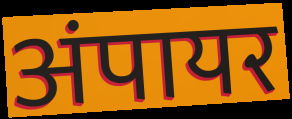
अंपायर